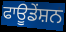
ਫਾਊਡੇਂਸ਼ਨ